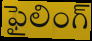
ఫైలింగ్